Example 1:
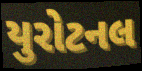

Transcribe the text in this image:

યુરોટનલ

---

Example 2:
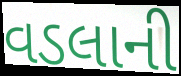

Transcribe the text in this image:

વડલાની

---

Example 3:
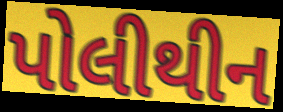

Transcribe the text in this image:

પોલીથીન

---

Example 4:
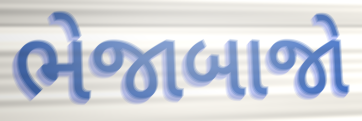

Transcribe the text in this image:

ભેજાબાજો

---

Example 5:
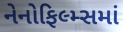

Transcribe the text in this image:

નેનોફિલ્મ્સમાં